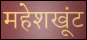
महेशखूंट